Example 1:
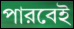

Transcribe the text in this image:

পারবেই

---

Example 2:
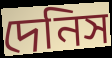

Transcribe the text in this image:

দেনিস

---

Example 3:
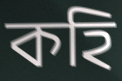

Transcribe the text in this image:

কহি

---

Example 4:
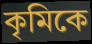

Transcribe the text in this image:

কৃমিকে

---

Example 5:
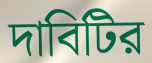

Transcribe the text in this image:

দাবিটির